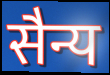
सैन्‍य